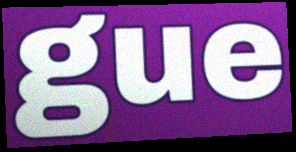
gue